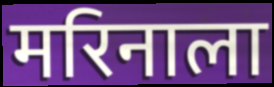
मरिनाला